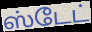
ஸ்டேட்